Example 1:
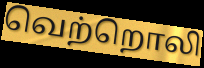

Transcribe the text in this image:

வெற்றொலி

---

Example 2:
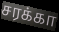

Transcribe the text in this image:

சரக்கா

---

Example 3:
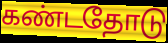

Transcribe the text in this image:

கண்டதோடு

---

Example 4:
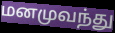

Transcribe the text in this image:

மனமுவந்து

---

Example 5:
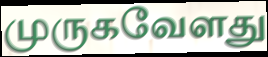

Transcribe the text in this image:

முருகவேளது